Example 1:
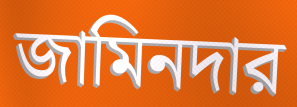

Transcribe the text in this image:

জামিনদার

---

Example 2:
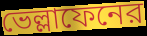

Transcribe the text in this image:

ভেল্লাফেনের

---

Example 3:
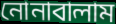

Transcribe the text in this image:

নোনাবালাম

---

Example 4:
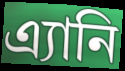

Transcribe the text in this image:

এ্যানি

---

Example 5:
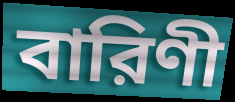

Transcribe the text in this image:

বারিণী